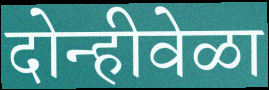
दोन्हीवेळा